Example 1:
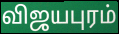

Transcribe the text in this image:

விஜயபுரம்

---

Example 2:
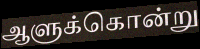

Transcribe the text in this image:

ஆளுக்கொன்று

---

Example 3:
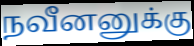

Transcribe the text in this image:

நவீனனுக்கு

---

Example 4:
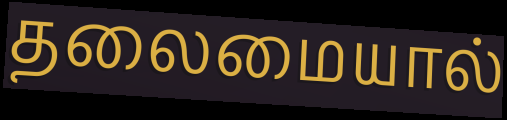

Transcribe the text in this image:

தலைமையால்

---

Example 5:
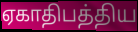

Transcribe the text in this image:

ஏகாதிபத்திய